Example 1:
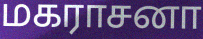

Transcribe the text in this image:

மகராசனா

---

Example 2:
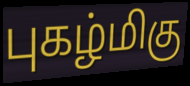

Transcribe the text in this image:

புகழ்மிகு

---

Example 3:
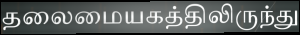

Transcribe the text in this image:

தலைமையகத்திலிருந்து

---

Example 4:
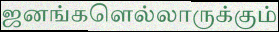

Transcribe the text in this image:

ஜனங்களெல்லாருக்கும்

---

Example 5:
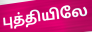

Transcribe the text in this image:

புத்தியிலே